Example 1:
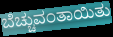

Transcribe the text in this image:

ಬೆಚ್ಚುವಂತಾಯಿತು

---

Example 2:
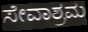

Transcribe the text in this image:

ಸೇವಾಶ್ರಮ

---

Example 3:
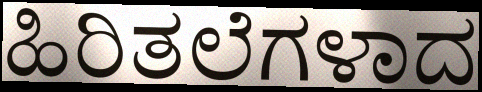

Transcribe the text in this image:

ಹಿರಿತಲೆಗಳಾದ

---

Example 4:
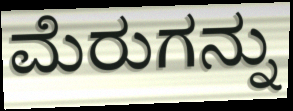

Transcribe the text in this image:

ಮೆರುಗನ್ನು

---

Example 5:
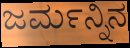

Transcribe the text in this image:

ಜರ್ಮನ್ನಿನ